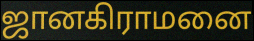
ஜானகிராமனை